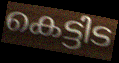
കെട്ടിട